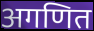
अगणित